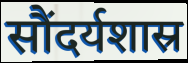
सौंदर्यशास्र